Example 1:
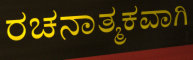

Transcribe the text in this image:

ರಚನಾತ್ಮಕವಾಗಿ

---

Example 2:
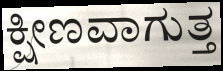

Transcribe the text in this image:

ಕ್ಷೀಣವಾಗುತ್ತ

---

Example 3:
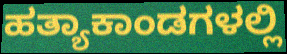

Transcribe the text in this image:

ಹತ್ಯಾಕಾಂಡಗಳಲ್ಲಿ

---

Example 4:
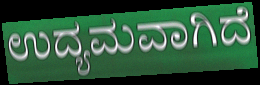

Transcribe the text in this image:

ಉದ್ಯಮವಾಗಿದೆ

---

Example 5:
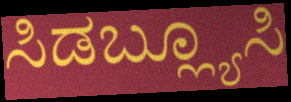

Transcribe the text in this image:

ಸಿಡಬ್ಲ್ಯೂಸಿ